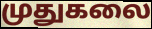
முதுகலை